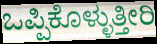
ಒಪ್ಪಿಕೊಳ್ಳುತ್ತೀರಿ